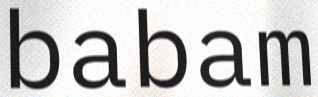
babam